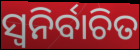
ସ୍ୱନିର୍ବାଚିତ